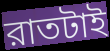
রাতটাই